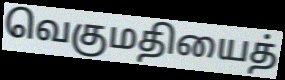
வெகுமதியைத்